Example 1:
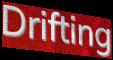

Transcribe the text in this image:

Drifting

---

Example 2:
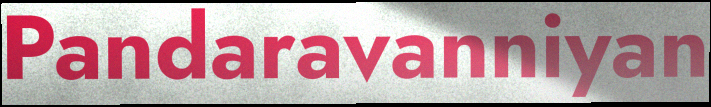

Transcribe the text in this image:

Pandaravanniyan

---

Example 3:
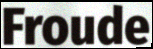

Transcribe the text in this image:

Froude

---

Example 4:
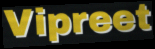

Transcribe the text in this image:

Vipreet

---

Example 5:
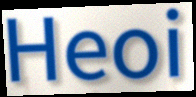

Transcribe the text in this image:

Heoi